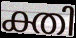
ക്തി